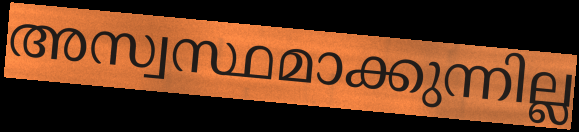
അസ്വസ്ഥമാക്കുന്നില്ല